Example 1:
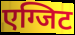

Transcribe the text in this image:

एग्जिट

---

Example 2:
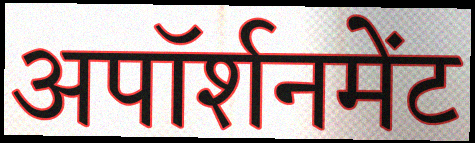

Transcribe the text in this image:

अपॉर्शनमेंट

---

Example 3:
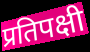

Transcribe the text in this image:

प्रतिपक्षी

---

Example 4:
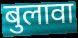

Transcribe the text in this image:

बुलावा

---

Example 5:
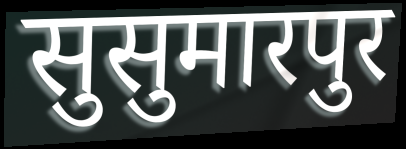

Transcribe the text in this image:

सुसुमारपुर